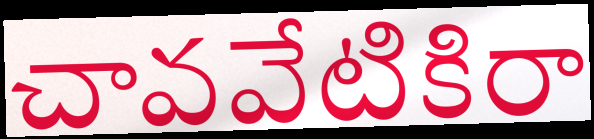
చావవేటికిరా